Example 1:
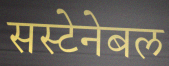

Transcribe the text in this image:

सस्टेनेबल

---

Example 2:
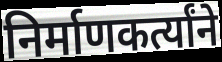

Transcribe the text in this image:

निर्माणकर्त्यांने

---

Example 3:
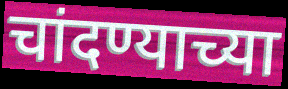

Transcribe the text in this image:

चांदण्याच्या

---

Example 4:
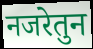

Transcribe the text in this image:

नजरेतुन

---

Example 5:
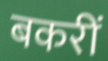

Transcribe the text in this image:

बकरीं